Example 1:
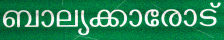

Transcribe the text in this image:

ബാല്യക്കാരോട്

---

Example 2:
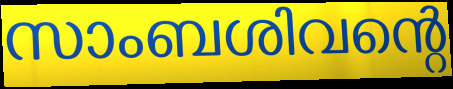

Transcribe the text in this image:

സാംബശിവന്റെ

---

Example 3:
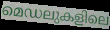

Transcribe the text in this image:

മെഡലുകളിലെ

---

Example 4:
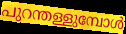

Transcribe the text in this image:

പുറന്തള്ളുമ്പോൾ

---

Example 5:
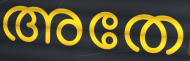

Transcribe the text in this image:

അതേ